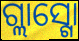
ଗ୍ଲାସ୍ଗୋ